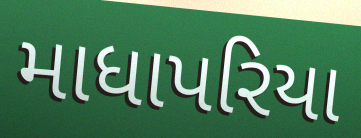
માધાપરિયા